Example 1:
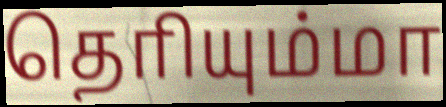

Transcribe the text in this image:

தெரியும்மா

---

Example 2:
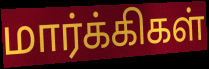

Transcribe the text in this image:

மார்க்கிகள்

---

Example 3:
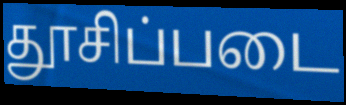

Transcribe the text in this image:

தூசிப்படை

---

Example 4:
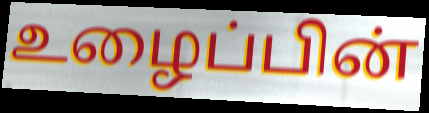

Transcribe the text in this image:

உழைப்பின்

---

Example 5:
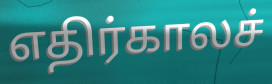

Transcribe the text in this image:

எதிர்காலச்